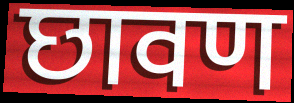
छावण